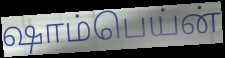
ஷாம்பெய்ன்